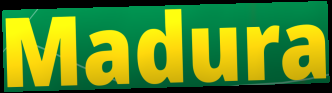
Madura